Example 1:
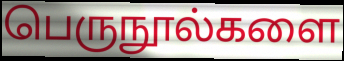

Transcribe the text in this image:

பெருநூல்களை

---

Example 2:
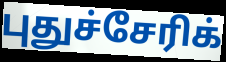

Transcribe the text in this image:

புதுச்சேரிக்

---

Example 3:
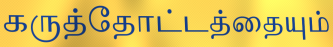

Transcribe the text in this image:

கருத்தோட்டத்தையும்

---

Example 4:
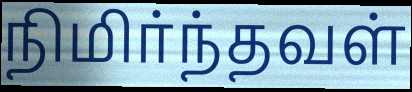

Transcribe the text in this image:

நிமிர்ந்தவள்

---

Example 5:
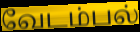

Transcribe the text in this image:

வேடம்பல்